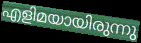
എളിമയായിരുന്നു